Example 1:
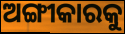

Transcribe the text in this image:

ଅଙ୍ଗୀକାରକୁ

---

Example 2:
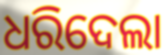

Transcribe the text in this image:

ଧରିଦେଲା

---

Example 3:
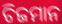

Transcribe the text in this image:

ଚିଜମାନ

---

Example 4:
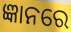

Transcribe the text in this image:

ଜ୍ଞାନରେ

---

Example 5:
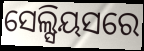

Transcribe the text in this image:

ସେଲ୍ସିୟସରେ